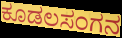
ಕೂಡಲಸಂಗನ